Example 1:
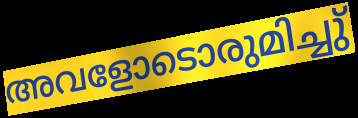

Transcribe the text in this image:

അവളോടൊരുമിച്ചു്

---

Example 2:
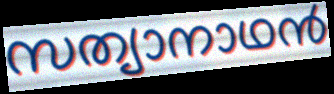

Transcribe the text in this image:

സത്യാനാഥൻ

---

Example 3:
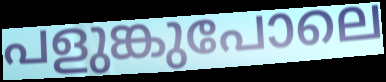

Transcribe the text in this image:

പളുങ്കുപോലെ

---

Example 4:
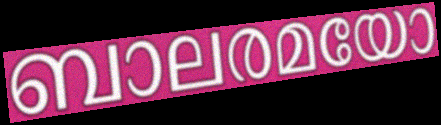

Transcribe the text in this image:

ബാലരമയോ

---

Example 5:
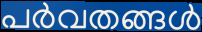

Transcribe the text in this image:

പർവതങ്ങൾ